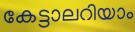
കേട്ടാലറിയാം